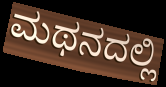
ಮಥನದಲ್ಲಿ